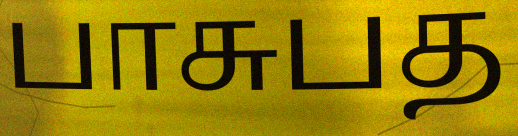
பாசுபத